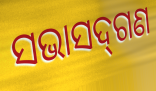
ସଭାସଦ୍‍ଗଣ